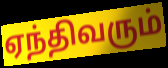
ஏந்திவரும்